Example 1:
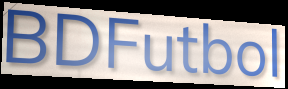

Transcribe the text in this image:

BDFutbol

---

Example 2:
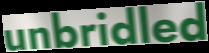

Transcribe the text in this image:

unbridled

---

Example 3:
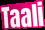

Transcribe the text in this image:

Taali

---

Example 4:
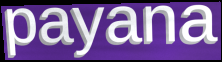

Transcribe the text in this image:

payana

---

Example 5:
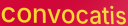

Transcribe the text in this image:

convocatis